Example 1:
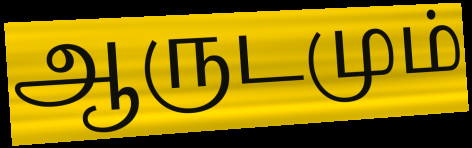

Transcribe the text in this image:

ஆருடமும்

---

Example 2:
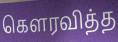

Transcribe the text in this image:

கெளரவித்த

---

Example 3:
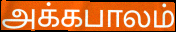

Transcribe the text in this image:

அக்கபாலம்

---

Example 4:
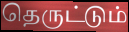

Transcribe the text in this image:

தெருட்டும்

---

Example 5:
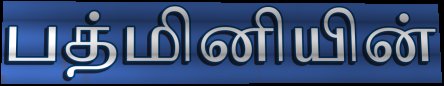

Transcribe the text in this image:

பத்மினியின்